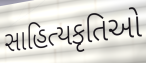
સાહિત્યકૃતિઓ